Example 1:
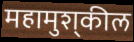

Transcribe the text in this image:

महामुश्कील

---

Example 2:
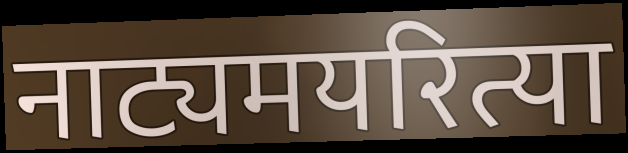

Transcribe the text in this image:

नाट्यमयरित्या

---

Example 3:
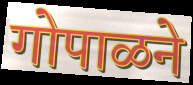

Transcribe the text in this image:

गोपाळने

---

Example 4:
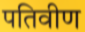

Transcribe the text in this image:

पतिवीण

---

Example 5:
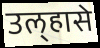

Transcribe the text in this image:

उल्हासे